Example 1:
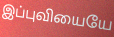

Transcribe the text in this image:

இப்புவியையே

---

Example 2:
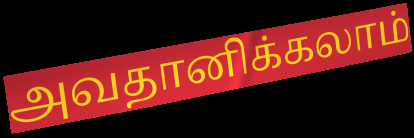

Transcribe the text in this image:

அவதானிக்கலாம்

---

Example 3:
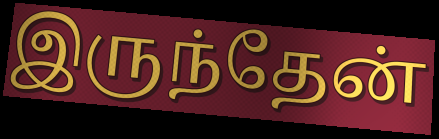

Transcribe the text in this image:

இருந்தேன்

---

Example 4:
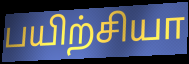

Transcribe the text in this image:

பயிற்சியா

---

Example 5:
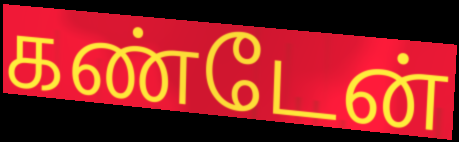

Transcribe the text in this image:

கண்டேன்